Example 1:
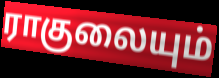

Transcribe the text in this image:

ராகுலையும்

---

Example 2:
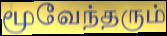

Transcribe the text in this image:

மூவேந்தரும்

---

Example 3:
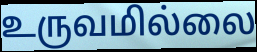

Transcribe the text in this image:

உருவமில்லை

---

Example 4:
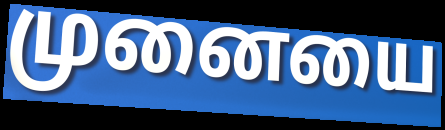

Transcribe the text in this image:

முனையை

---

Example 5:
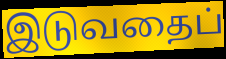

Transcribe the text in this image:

இடுவதைப்